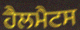
ਹੈਲਮੈਟਸ